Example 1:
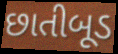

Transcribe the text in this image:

છાતીબૂડ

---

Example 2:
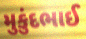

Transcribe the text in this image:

મુકુંદભાઈ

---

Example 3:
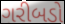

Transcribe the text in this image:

ગરીબડો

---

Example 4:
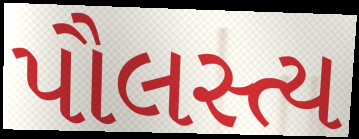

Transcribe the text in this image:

પૌલસ્ત્ય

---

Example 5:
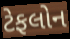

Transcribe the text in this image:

ટેફલોન